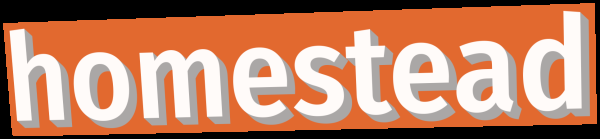
homestead